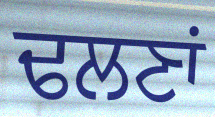
ਢਲਣਾਂ